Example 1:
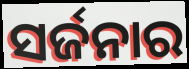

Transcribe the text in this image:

ସର୍ଜନାର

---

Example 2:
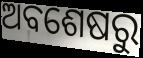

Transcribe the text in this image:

ଅବଶେଷରୁ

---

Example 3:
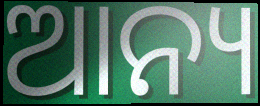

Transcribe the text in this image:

ଆନ୍ୟ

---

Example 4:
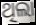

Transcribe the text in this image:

ଥିଲା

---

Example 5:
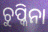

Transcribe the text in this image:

ଚୁପ୍କିନା